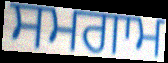
ਸਮਗਾਮ